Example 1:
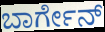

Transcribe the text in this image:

ಬಾರ್ಗೇನ್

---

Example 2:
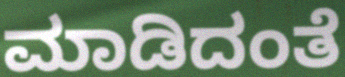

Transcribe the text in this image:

ಮಾಡಿದಂತೆ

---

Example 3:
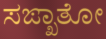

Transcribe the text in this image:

ಸಙ್ಖಾತೋ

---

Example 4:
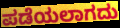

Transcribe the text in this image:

ಪಡೆಯಲಾಗದು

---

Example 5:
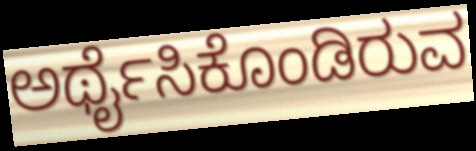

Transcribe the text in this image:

ಅರ್ಥೈಸಿಕೊಂಡಿರುವ